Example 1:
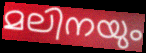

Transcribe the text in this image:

മലിനയും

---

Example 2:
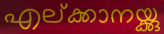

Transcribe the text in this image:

എല്ക്കാനയ്ക്കു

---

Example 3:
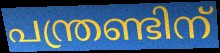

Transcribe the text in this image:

പന്ത്രണ്ടിന്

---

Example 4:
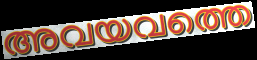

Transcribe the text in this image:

അവയവത്തെ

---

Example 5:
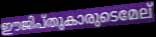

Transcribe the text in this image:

ഈജിപ്തുകാരുടെമേല്